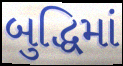
બુદ્ધિમાં